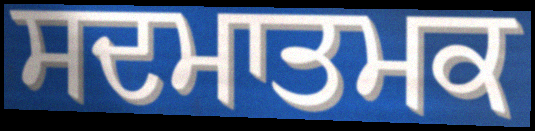
ਸਦਮਾਤਮਕ